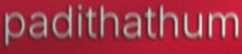
padithathum